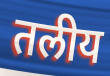
तलीय